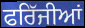
ਫਰਿੱਜੀਆਂ